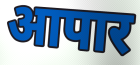
आपार